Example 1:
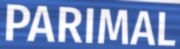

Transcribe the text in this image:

PARIMAL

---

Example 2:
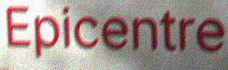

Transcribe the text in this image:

Epicentre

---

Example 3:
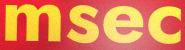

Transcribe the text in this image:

msec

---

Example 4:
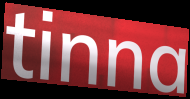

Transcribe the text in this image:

tinna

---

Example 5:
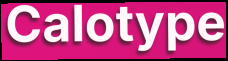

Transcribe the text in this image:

Calotype